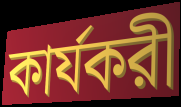
কার্যকরী